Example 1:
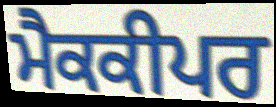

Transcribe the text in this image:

ਮੈਕਕੀਪਰ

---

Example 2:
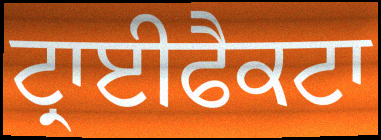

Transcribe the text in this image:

ਟ੍ਰਾਈਫੈਕਟਾ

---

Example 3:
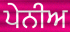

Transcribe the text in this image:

ਪੇਨੀਅ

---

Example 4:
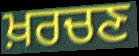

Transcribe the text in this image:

ਖ਼ਰਚਣ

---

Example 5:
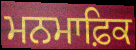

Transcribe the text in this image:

ਮਨਮਾਫ਼ਿਕ